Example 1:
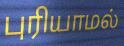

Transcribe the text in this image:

புரியாமல்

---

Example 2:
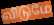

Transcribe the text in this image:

விடுமே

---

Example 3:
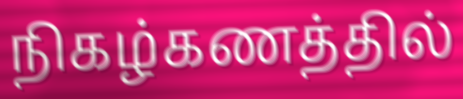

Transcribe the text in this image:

நிகழ்கணத்தில்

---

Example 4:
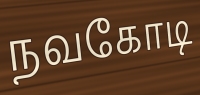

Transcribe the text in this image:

நவகோடி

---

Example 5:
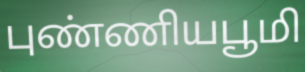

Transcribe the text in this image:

புண்ணியபூமி